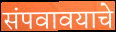
संपवावयाचे